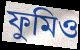
ফুমিও